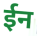
ईन